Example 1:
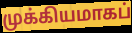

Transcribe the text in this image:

முக்கியமாகப்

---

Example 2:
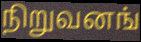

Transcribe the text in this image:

நிறுவனங்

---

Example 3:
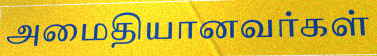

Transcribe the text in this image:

அமைதியானவர்கள்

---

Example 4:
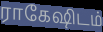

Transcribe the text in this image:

ராகேஷிடம்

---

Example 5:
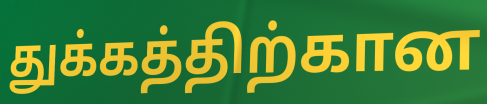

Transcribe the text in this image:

துக்கத்திற்கான